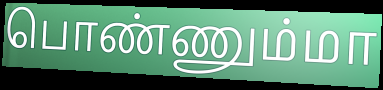
பொண்ணும்மா